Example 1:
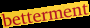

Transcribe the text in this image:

betterment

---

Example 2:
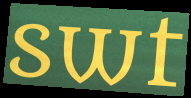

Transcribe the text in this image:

swt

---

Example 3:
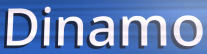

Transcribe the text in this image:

Dinamo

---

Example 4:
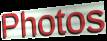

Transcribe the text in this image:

Photos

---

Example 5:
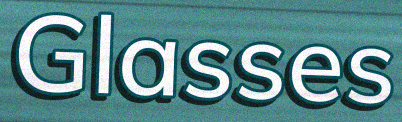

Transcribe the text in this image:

Glasses